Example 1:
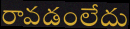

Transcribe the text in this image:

రావడంలేదు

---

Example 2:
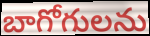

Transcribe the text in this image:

బాగోగులను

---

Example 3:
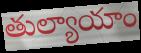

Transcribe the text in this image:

తుల్యాయాం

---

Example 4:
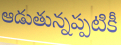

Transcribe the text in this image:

ఆడుతున్నప్పటికీ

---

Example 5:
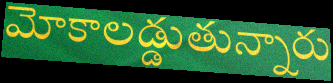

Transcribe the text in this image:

మోకాలడ్డుతున్నారు